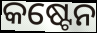
କଷ୍ଟେନ